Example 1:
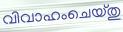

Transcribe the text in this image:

വിവാഹംചെയ്തു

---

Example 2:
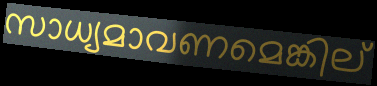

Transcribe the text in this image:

സാധ്യമാവണമെങ്കില്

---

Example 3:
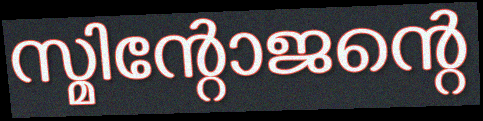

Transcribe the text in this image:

സ്മിന്റോജന്റെ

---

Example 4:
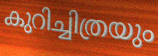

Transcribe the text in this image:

കുറിച്ചിത്രയും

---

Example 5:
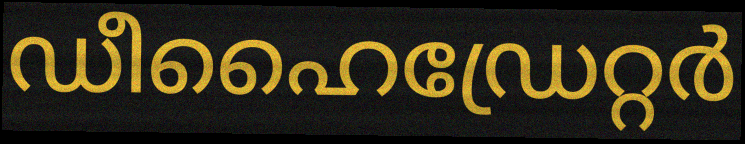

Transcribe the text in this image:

ഡീഹൈഡ്രേറ്റർ